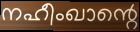
നഹീംഖാന്റെ